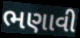
ભણાવી